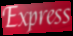
Express